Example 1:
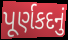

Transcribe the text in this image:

પૂર્ણકદનું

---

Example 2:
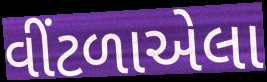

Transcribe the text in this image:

વીંટળાએલા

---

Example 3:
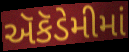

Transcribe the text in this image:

ઍકૅડેમીમાં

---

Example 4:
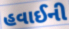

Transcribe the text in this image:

હવાઈની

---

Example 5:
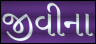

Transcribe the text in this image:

જીવીના